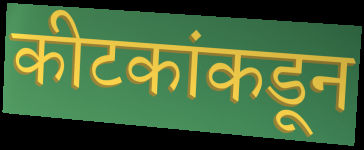
कीटकांकडून